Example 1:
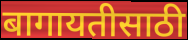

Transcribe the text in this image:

बागायतीसाठी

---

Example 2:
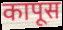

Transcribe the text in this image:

कापूस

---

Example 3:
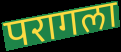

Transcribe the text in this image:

परागला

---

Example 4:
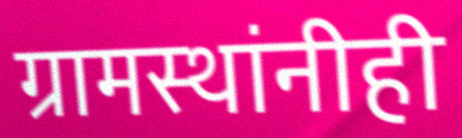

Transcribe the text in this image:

ग्रामस्थांनीही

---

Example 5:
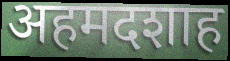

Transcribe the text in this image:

अहमदशाह